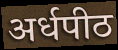
अर्धपीठ